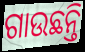
ଗାଉଛନ୍ତି